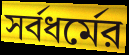
সর্বধর্মের